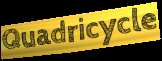
Quadricycle